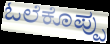
ಓಲೆಕೊಪ್ಪು